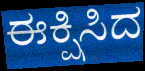
ಈಕ್ಷಿಸಿದ